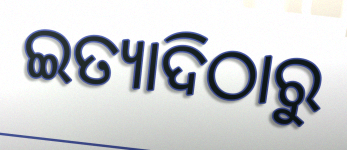
ଇତ୍ୟାଦିଠାରୁ